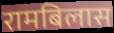
रामबिलास